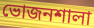
ভোজনশালা